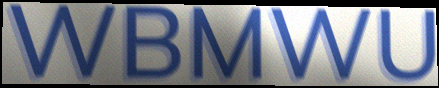
WBMWU